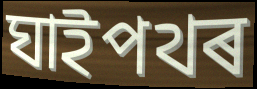
ঘাইপথৰ